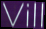
Vill